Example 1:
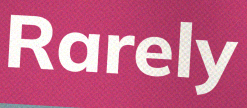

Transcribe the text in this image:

Rarely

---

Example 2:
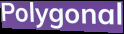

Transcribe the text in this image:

Polygonal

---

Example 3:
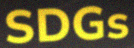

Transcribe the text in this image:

SDGs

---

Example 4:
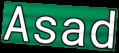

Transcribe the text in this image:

Asad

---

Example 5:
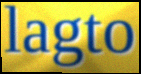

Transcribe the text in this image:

lagto